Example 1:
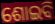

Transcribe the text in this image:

ଶୋଇବି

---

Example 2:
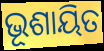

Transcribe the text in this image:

ଭୂଶାୟିତ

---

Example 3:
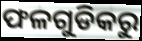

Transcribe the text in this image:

ଫଳଗୁଡିକରୁ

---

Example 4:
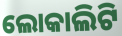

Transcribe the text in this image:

ଲୋକାଲିଟି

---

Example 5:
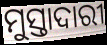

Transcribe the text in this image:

ମୁସ୍ତାଦାରୀ